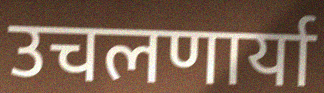
उचलणार्या